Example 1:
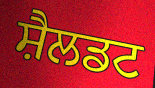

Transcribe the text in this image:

ਸ਼ੈਲਡਟ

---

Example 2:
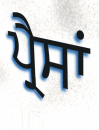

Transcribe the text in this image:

ਪ੍ਰੈਸਾਂ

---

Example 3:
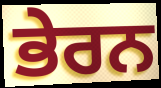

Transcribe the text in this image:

ਭੇਰਨ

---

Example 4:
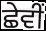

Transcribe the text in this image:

ਛੇਵੀਂ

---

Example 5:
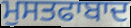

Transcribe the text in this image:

ਮੁਸਤਫਾਬਾਦ